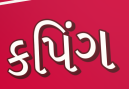
કપિંગ